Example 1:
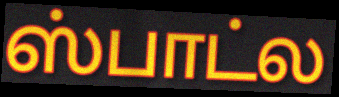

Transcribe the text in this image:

ஸ்பாட்ல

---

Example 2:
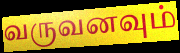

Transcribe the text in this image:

வருவனவும்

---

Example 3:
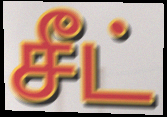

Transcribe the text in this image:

சீட்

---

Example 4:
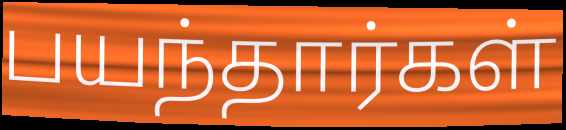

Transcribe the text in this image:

பயந்தார்கள்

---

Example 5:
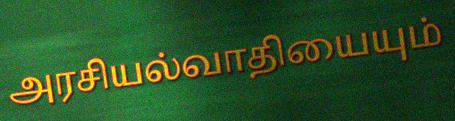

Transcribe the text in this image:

அரசியல்வாதியையும்